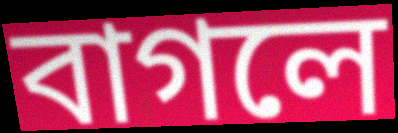
বাগলে